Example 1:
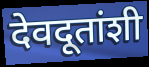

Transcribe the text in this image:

देवदूतांशी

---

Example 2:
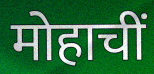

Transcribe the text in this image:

मोहाचीं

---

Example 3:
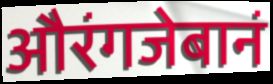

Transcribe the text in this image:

औरंगजेबानं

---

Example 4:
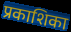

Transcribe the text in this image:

प्रकाशिका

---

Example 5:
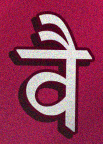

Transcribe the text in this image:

वै